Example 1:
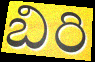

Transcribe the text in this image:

బిరి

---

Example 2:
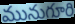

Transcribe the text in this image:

మునుగూరి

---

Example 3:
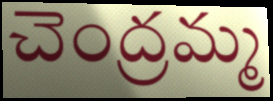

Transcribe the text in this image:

చెంద్రమ్మ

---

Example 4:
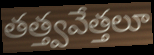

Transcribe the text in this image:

తత్త్వవేత్తలూ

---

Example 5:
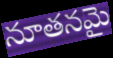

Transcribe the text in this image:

నూతనమై